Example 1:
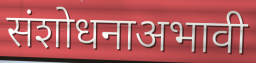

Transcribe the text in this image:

संशोधनाअभावी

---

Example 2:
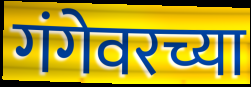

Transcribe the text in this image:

गंगेवरच्या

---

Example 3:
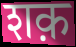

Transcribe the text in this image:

शक़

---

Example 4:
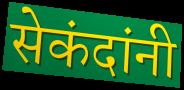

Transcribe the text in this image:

सेकंदांनी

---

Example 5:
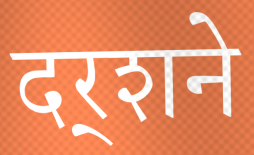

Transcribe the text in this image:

दर्शने